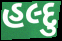
હલ્દુ